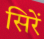
सिरें